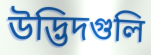
উদ্ভিদগুলি